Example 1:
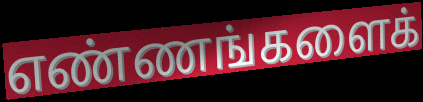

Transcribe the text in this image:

எண்ணங்களைக்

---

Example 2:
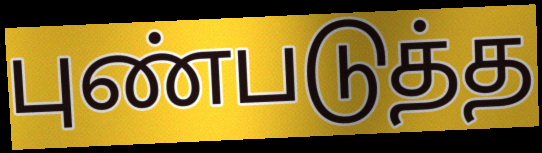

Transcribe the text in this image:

புண்படுத்த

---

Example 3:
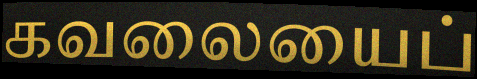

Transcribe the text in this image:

கவலையைப்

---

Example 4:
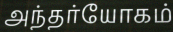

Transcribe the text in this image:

அந்தர்யோகம்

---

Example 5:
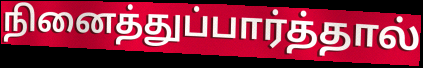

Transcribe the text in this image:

நினைத்துப்பார்த்தால்